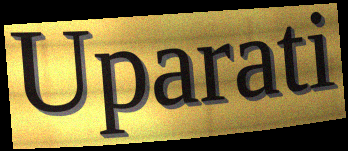
Uparati